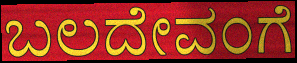
ಬಲದೇವಂಗೆ